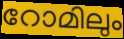
റോമിലും